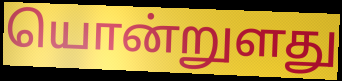
யொன்றுளது